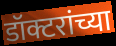
डॉक्टरांच्या